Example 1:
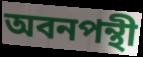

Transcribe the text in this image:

অবনপন্থী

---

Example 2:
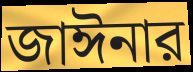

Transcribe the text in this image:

জাঈনার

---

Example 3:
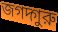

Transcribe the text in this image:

জগদ্গুরু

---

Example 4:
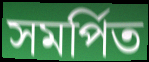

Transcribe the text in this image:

সমর্পিত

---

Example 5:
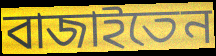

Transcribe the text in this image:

বাজাইতেন